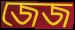
জেজ